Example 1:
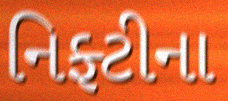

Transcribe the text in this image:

નિફ્ટીના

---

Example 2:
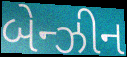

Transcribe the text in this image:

બેન્ઝીન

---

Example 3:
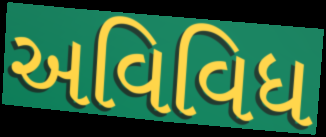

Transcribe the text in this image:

અવિવિધ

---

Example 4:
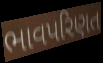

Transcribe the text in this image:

ભાવપરિણત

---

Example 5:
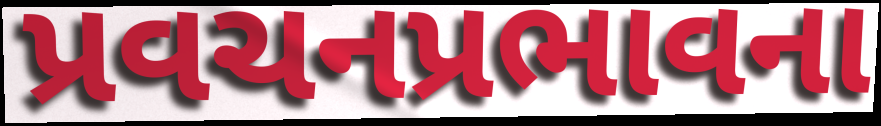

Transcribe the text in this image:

પ્રવચનપ્રભાવના